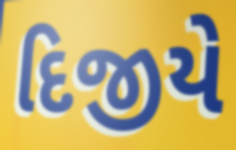
દિજીયે